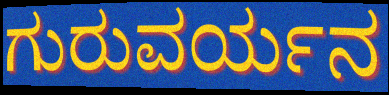
ಗುರುವರ್ಯನ